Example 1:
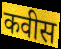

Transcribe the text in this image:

कवीस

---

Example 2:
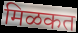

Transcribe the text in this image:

मिळकत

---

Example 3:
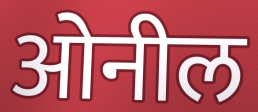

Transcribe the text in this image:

ओनील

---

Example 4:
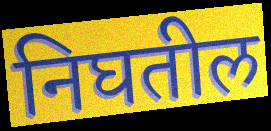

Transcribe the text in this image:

निघतील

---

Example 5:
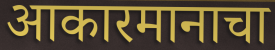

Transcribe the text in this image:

आकारमानाचा